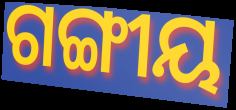
ଗଙ୍ଗୀୟ